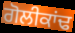
ਗੋਲੀਕਾਂਢ